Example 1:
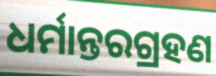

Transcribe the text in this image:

ଧର୍ମାନ୍ତରଗ୍ରହଣ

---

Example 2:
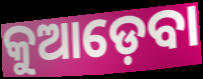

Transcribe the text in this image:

କୁଆଡ଼େବା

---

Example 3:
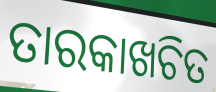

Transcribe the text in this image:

ତାରକାଖଚିତ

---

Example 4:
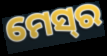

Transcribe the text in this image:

ମେସ୍‌ର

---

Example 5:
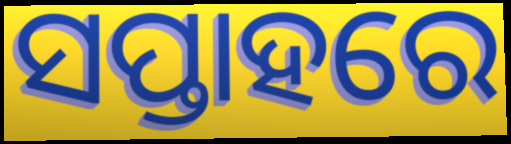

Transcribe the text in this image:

ସପ୍ତାହରେ